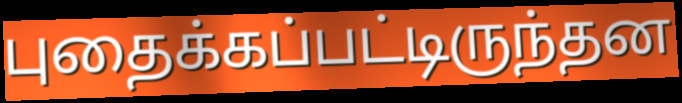
புதைக்கப்பட்டிருந்தன